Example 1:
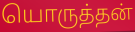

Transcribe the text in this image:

யொருத்தன்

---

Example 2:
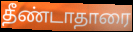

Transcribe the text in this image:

தீண்டாதாரை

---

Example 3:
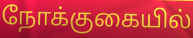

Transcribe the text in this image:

நோக்குகையில்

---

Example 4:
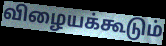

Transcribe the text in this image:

விழையக்கூடும்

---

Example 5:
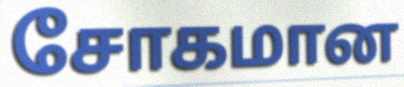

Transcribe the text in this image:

சோகமான